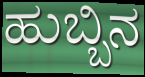
ಹುಬ್ಬಿನ